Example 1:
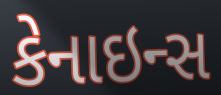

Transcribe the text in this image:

કેનાઇન્સ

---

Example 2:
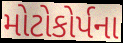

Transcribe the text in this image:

મોટોકોર્પના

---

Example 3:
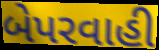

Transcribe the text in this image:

બેપરવાહી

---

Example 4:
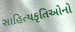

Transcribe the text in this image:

સાહિત્યકૃતિઓનો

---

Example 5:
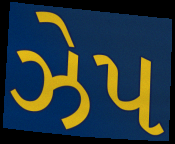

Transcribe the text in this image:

ઝેપ